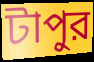
টাপুর